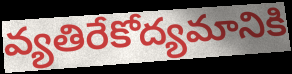
వ్యతిరేకోద్యమానికి